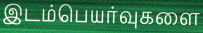
இடம்பெயர்வுகளை